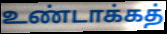
உண்டாக்கத்